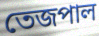
তেজপাল